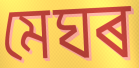
মেঘৰ